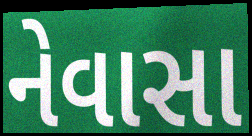
નેવાસા